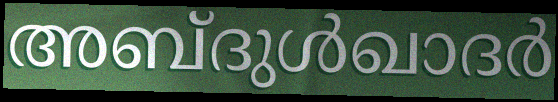
അബ്ദുൾഖാദർ